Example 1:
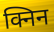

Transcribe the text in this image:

क्निन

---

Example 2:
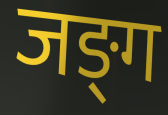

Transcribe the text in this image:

जङ्ग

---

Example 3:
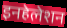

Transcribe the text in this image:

इनहेलेशन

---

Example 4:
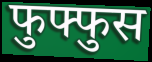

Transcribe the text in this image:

फुफ्फुस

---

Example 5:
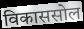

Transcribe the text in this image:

विकाससोल